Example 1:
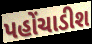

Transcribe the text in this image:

પહોંચાડીશ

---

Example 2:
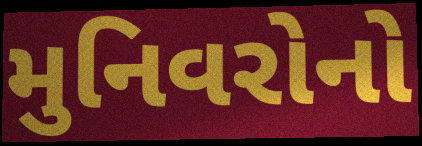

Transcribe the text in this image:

મુનિવરોનો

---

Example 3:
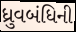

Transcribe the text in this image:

ધ્રુવબંધિની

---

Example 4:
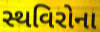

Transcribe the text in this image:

સ્થવિરોના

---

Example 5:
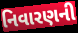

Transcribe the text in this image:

નિવારણની